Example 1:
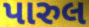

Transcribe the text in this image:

પારુલ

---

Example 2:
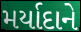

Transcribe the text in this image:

મર્યાદાને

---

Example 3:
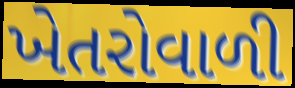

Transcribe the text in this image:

ખેતરોવાળી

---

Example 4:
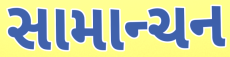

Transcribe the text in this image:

સામાન્ચન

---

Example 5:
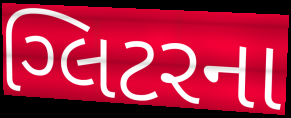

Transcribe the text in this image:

ગ્લિટરના